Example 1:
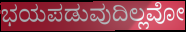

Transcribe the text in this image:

ಭಯಪಡುವುದಿಲ್ಲವೋ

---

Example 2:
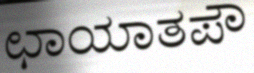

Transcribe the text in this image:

ಛಾಯಾತಪೌ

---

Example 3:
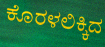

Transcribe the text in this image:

ಕೊರಳಲಿಕ್ಕಿದ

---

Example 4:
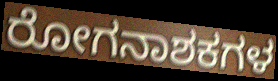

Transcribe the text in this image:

ರೋಗನಾಶಕಗಳ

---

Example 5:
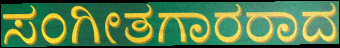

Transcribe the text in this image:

ಸಂಗೀತಗಾರರಾದ